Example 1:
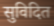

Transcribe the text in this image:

सुविदित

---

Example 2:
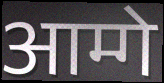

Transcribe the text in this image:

आम्गे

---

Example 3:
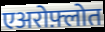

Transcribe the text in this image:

एअरोफ़्लोत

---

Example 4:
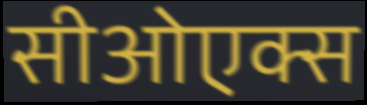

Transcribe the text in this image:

सीओएक्स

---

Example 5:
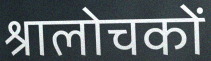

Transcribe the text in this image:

श्रालोचकों